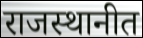
राजस्थानीत